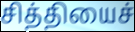
சித்தியைச்